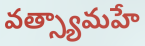
వత్స్యామహే